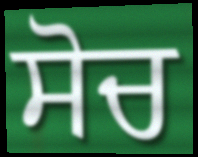
ਸੋਚ